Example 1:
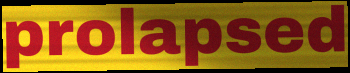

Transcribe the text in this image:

prolapsed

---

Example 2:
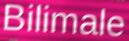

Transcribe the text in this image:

Bilimale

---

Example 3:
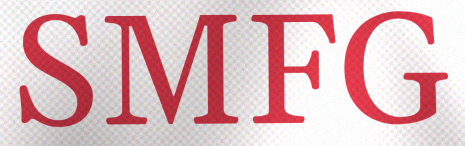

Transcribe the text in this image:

SMFG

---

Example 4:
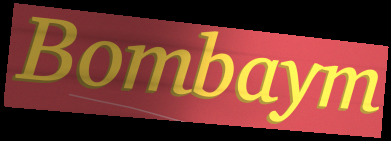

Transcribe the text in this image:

Bombaym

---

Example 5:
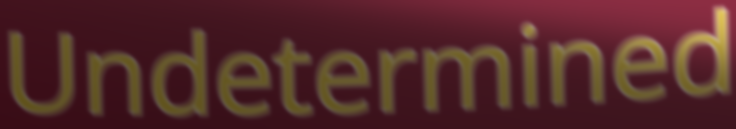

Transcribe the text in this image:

Undetermined